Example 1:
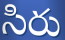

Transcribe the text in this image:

సిరు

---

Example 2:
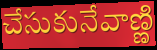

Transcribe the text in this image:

చేసుకునేవాణ్ణి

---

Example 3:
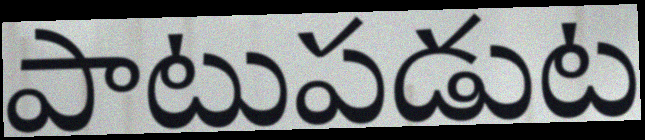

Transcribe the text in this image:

పాటుపడుట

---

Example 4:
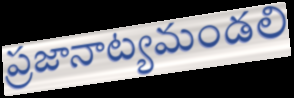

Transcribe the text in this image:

ప్రజానాట్యమండలి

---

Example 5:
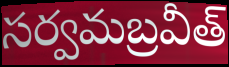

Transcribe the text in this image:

సర్వమబ్రవీత్